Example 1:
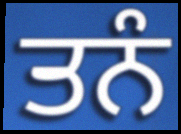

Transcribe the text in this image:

ਤਨੰ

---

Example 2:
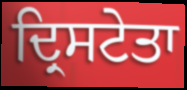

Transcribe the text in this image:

ਦ੍ਰਿਸਟੇਤਾ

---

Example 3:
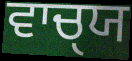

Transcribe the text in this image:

ਵਾਚੑਯ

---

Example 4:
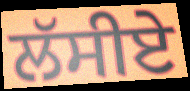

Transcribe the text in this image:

ਲੱਸੀਏ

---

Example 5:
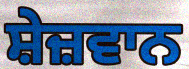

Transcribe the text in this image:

ਸ਼ੇਜ਼ਵਾਨ